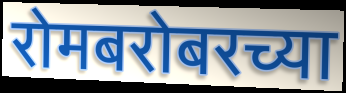
रोमबरोबरच्या